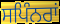
ਸਪਿੰਨਰਾਂ